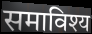
समाविश्य